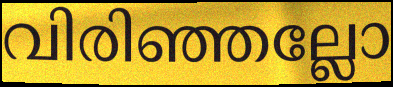
വിരിഞ്ഞല്ലോ